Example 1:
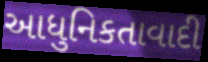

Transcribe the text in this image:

આધુનિકતાવાદી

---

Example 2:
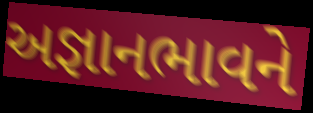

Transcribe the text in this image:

અજ્ઞાનભાવને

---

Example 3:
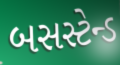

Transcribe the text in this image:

બસસ્ટેન્ડ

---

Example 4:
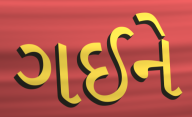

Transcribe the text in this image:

ગઈને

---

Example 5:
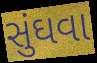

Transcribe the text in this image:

સુંઘવા